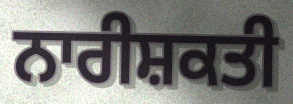
ਨਾਰੀਸ਼ਕਤੀ